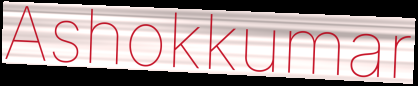
Ashokkumar